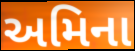
અમિના